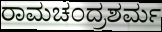
ರಾಮಚಂದ್ರಶರ್ಮ